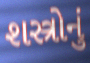
શસ્ત્રોનું